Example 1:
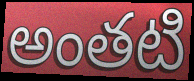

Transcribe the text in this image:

అంతటి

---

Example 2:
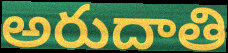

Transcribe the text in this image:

అరుదాతి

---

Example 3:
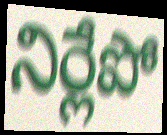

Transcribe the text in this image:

నిర్లేపో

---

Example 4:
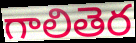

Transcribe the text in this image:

గాలితెర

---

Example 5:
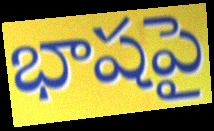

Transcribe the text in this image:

భాషపై